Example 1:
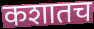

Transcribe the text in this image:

कशातच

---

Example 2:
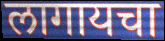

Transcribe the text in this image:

लागायचा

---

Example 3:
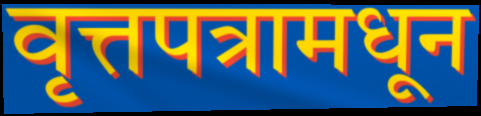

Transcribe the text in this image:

वृत्तपत्रामधून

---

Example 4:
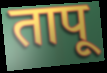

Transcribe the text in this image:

तापू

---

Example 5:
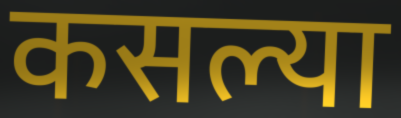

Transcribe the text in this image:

कसल्या